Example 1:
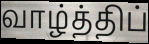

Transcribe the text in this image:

வாழ்த்திப்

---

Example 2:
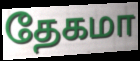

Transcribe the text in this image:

தேகமா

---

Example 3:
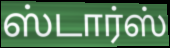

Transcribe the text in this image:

ஸ்டார்ஸ்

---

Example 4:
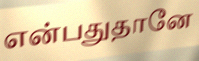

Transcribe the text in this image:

என்பதுதானே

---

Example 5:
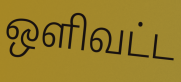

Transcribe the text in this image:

ஒளிவட்ட